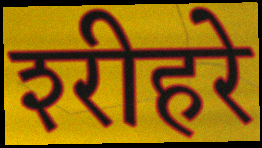
श्रीहरे